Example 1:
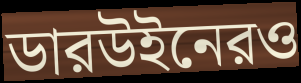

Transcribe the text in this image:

ডারউইনেরও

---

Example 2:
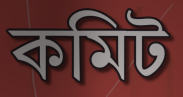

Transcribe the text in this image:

কমিট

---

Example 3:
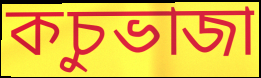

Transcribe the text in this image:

কচুভাজা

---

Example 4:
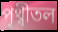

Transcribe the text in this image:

পৃথ্বীতল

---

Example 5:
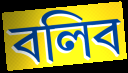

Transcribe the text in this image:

বলিব